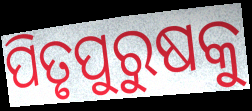
ପିତୃପୁରୁଷକୁ